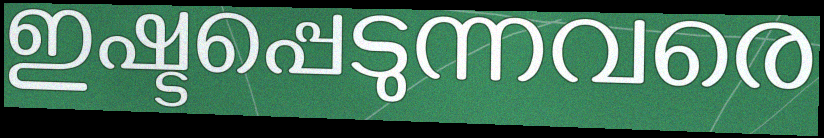
ഇഷ്ടപ്പെടുന്നവരെ